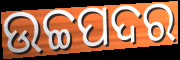
ଉଚ୍ଚପଦର